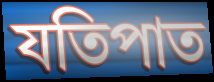
যতিপাত